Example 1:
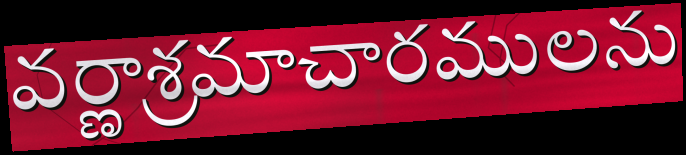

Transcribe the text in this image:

వర్ణాశ్రమాచారములను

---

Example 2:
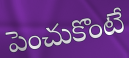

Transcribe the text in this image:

పెంచుకొంటే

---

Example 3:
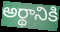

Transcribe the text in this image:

అర్థానికి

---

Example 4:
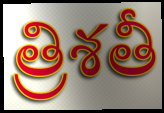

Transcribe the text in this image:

త్రిశతీ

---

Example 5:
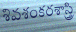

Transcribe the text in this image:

శివశంకరశాస్త్రి